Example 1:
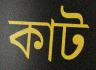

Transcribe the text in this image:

কাট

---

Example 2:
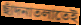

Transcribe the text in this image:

ছাঁদনাতলাতেই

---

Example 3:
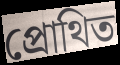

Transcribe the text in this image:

প্রোথিত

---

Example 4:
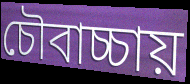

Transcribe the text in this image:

চৌবাচ্চায়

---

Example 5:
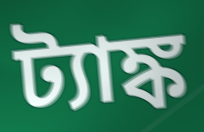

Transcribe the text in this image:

ট্যাঙ্ক